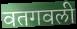
वतगवली